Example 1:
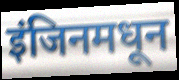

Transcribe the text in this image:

इंजिनमधून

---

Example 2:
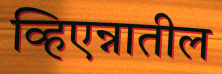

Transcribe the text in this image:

व्हिएन्नातील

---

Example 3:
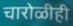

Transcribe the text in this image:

चारोळीही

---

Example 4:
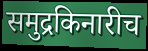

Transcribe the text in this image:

समुद्रकिनारीच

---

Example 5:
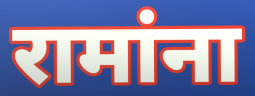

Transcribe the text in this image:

रामांना